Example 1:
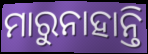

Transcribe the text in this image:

ମାରୁନାହାନ୍ତି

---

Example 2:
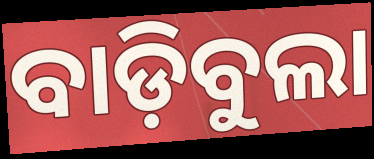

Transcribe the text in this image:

ବାଡ଼ିବୁଲା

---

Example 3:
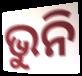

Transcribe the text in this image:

ଭୁନି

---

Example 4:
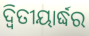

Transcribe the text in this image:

ଦ୍ୱିତୀୟାର୍ଦ୍ଧର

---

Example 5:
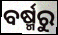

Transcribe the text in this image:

ବର୍ଷ୍ମରୁ